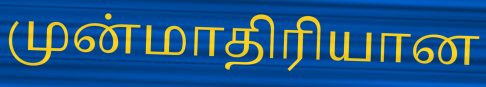
முன்மாதிரியான